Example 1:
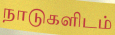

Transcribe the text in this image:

நாடுகளிடம்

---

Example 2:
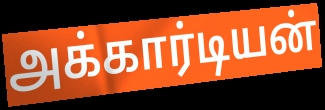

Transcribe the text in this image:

அக்கார்டியன்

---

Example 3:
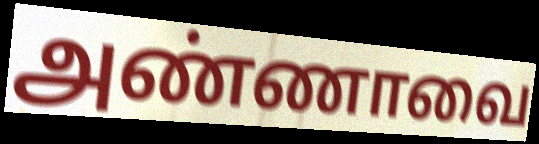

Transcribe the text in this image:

அண்ணாவை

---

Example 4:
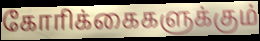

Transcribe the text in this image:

கோரிக்கைகளுக்கும்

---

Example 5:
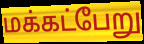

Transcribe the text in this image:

மக்கட்பேறு